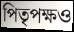
পিতৃপক্ষও